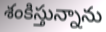
శంకిస్తున్నాను